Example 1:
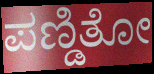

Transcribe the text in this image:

ಪಣ್ಡಿತೋ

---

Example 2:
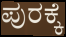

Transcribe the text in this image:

ಪುರಕ್ಕೆ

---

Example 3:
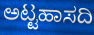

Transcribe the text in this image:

ಅಟ್ಟಹಾಸದಿ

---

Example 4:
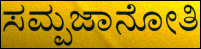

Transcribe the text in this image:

ಸಮ್ಪಜಾನೋತಿ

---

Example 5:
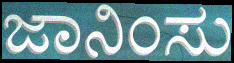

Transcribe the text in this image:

ಜಾನಿಂಸು